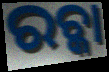
ରଚ୍କା